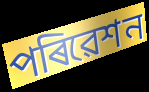
পৰিৱেশন